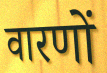
वारणों